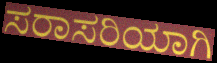
ಸರಾಸರಿಯಾಗಿ